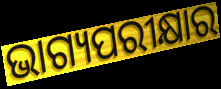
ଭାଗ୍ୟପରୀକ୍ଷାର